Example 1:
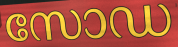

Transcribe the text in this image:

സോഡ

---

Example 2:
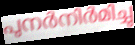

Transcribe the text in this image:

പുനർനിർമിച്ചു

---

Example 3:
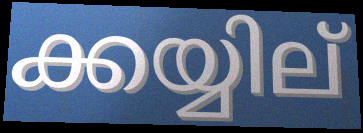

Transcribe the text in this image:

ക്കയ്യില്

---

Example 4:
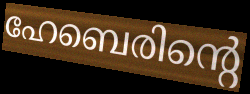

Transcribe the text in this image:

ഹേബെരിന്റെ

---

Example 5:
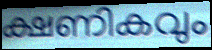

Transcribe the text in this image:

ക്ഷണികവും